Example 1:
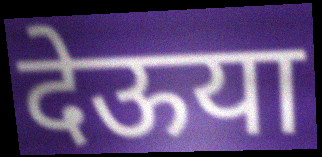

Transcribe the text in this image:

देऊया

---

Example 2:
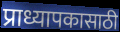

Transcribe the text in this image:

प्राध्यापकासाठी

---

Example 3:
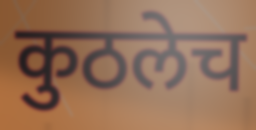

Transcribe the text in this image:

कुठलेच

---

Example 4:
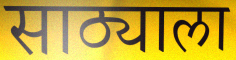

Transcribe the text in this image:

साठ्याला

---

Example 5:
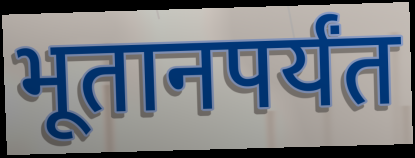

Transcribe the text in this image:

भूतानपर्यंत